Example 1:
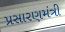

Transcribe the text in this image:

પ્રસારણમંત્રી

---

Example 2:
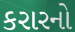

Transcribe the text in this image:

કરારનો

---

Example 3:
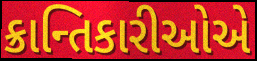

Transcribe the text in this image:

ક્રાન્તિકારીઓએ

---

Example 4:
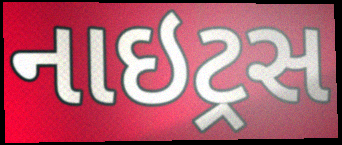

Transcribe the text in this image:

નાઇટ્રસ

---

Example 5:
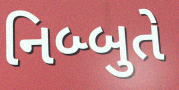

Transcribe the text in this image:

નિબ્બુતે